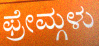
ಫ್ರೇಮ್ಗಳು